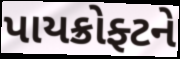
પાયક્રોફ્ટને